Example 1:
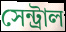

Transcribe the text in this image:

সেন্ট্রাল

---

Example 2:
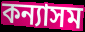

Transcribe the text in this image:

কন্যাসম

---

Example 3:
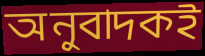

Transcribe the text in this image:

অনুবাদকই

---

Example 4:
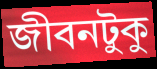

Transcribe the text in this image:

জীবনটুকু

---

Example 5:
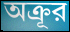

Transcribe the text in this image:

অক্রূর